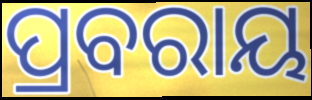
ପ୍ରବରାୟ